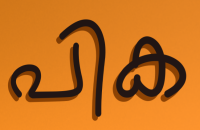
പിക